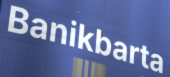
Banikbarta